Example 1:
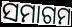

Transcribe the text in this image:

ସମାଗମ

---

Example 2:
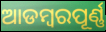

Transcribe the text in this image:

ଆଡମ୍ବରପୂର୍ଣ୍ଣ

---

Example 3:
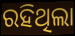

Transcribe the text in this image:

ରହିଥିଲା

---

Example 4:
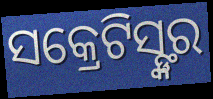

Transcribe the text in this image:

ସକ୍ରେଟିସ୍ଙ୍କର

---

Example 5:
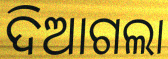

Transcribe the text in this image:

ଦିଆଗଲା